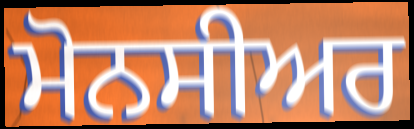
ਮੋਨਸੀਅਰ